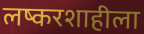
लष्करशाहीला